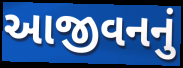
આજીવનનું